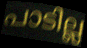
പാടില്ല